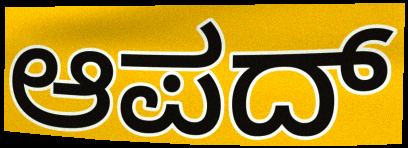
ಆಪದ್